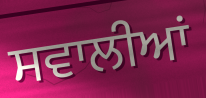
ਸਵਾਲੀਆਂ